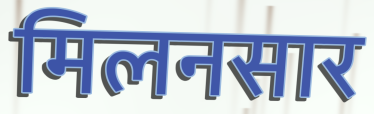
मिलनसार